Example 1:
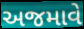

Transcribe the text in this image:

અજમાવે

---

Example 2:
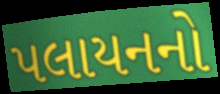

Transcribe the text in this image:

પલાયનનો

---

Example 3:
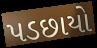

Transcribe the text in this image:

પડછાયો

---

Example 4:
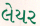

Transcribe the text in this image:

લેયર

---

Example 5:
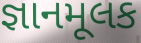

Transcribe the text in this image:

જ્ઞાનમૂલક